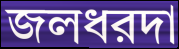
জলধরদা